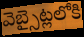
వెబ్సైట్లలోకి